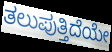
ತಲುಪುತ್ತಿದೆಯೇ